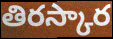
తిరస్కార